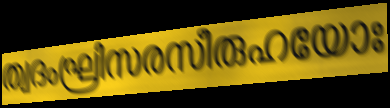
ത്വദംഘ്രിസരസീരുഹയോഃ